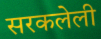
सरकलेली